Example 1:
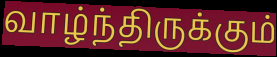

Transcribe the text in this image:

வாழ்ந்திருக்கும்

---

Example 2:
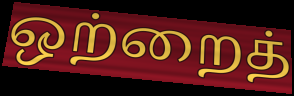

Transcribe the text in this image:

ஒற்றைத்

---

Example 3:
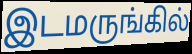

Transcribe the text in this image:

இடமருங்கில்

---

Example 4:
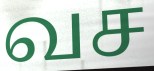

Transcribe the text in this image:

வச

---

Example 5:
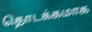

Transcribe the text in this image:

தொடக்கமாக